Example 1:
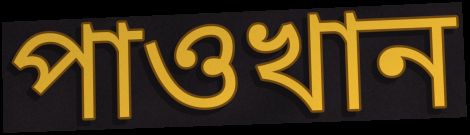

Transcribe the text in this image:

পাওখান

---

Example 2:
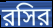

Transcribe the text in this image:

রসির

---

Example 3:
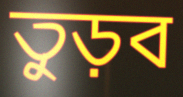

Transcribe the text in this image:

তুড়ব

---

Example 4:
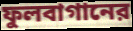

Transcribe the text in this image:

ফুলবাগানের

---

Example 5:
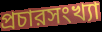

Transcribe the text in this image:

প্রচারসংখ্যা